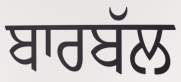
ਬਾਰਬੱਲ